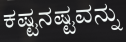
ಕಷ್ಟನಷ್ಟವನ್ನು